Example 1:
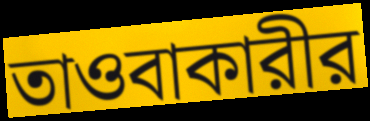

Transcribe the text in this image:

তাওবাকারীর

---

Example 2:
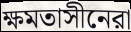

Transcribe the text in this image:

ক্ষমতাসীনেরা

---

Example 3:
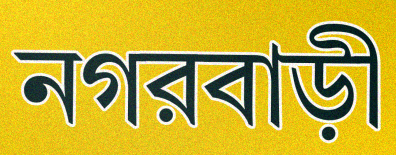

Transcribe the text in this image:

নগরবাড়ী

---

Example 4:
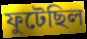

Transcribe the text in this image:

ফুটেছিল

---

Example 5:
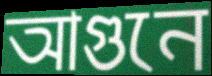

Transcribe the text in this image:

আগুনে